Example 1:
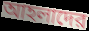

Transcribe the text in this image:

আহলাদের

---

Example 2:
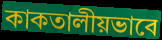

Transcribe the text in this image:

কাকতালীয়ভাবে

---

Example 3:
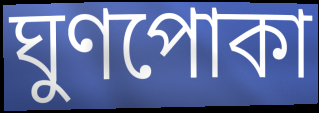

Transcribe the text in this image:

ঘুণপোকা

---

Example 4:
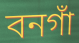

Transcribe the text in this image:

বনগাঁ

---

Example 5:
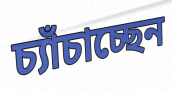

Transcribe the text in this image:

চ্যাঁচাচ্ছেন